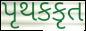
પૃથકકૃત